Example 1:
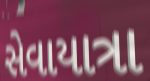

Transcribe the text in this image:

સેવાયાત્રા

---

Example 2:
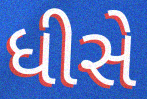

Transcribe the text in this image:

ધીસે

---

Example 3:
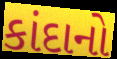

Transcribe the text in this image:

કાંદાનો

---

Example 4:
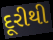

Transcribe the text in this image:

દૂરીથી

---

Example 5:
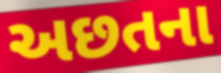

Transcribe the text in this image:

અછતના